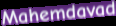
Mahemdavad